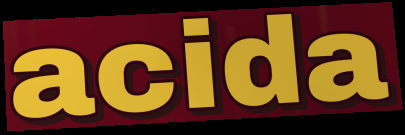
acida